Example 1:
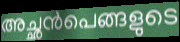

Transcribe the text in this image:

അച്ഛൻപെങ്ങളുടെ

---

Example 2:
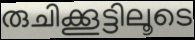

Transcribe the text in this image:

രുചിക്കൂട്ടിലൂടെ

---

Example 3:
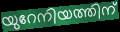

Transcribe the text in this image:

യുറേനിയത്തിന്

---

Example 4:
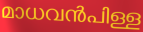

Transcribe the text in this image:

മാധവൻപിള്ള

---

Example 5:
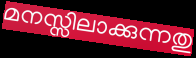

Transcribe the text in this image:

മനസ്സിലാക്കുന്നതു